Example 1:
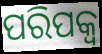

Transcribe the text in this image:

ପରିପକ୍ବ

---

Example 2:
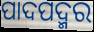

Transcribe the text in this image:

ପାଦପଦ୍ମର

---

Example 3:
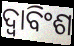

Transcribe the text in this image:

ଦ୍ୱାବିଂଶ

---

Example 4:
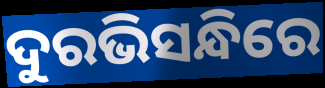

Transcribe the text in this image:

ଦୁରଭିସନ୍ଧିରେ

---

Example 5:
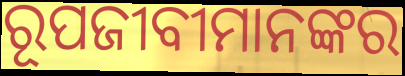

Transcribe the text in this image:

ରୂପଜୀବୀମାନଙ୍କର